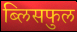
ब्लिसफुल